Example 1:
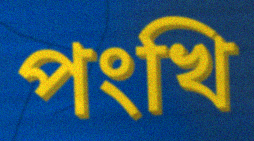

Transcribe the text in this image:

পংখি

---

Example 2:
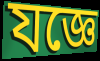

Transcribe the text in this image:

যজ্ঞে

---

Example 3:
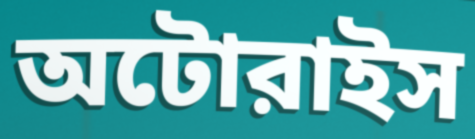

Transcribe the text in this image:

অটোরাইস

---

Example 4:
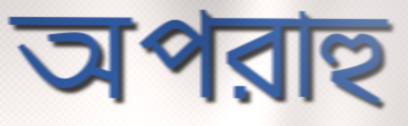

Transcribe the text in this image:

অপরাহু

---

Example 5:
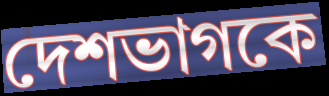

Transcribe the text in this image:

দেশভাগকে